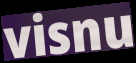
visnu